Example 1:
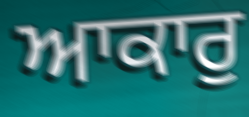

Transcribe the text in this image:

ਆਕਾਰੁ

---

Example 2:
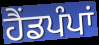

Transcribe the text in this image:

ਹੈਂਡਪੰਪਾਂ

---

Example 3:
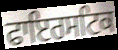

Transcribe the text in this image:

ਫਾਇਰਸਟਿਕ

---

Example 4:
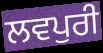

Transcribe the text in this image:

ਲਵਪੁਰੀ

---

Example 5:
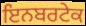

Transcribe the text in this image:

ਇਨਬਰਟੇਕ